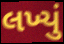
લખ્યું